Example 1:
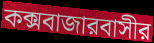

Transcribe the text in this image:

কক্সবাজারবাসীর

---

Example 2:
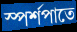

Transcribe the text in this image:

স্পর্শপাতে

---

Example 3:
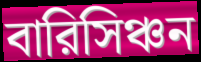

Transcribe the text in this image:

বারিসিঞ্চন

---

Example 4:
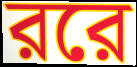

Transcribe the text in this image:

ররে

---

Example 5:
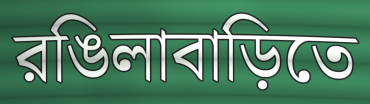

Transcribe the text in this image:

রঙিলাবাড়িতে